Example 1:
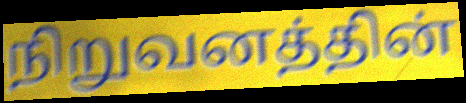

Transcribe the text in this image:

நிறுவனத்தின்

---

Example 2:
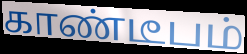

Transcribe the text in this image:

காண்டீபம்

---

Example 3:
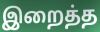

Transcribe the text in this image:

இறைத்த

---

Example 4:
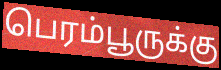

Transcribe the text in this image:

பெரம்பூருக்கு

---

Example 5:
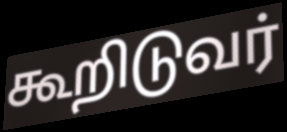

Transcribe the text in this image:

கூறிடுவர்